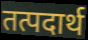
तत्पदार्थ